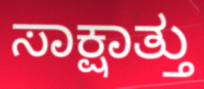
ಸಾಕ್ಷಾತ್ತು